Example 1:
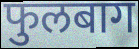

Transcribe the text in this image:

फुलबाग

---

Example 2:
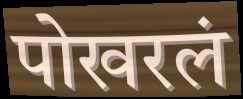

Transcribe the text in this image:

पोखरलं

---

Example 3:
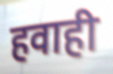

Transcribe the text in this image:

हवाही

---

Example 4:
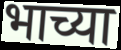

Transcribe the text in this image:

भाच्या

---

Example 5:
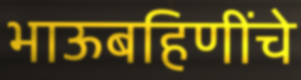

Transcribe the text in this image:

भाऊबहिणींचे